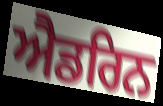
ਐਡਰਿਨ